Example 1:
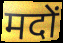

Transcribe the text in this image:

मदों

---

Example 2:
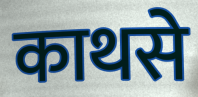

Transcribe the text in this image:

काथसे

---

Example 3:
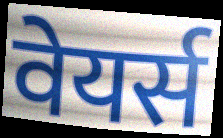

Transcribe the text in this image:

वेयर्स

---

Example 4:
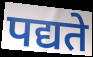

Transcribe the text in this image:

पद्यते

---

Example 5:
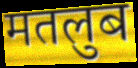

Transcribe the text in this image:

मतलुब